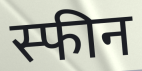
स्फीन